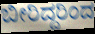
ಬೀರಿದ್ದರಿಂದ